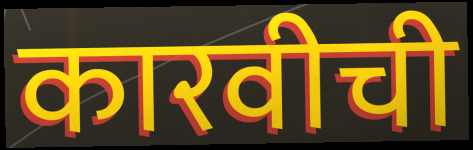
कारवीची